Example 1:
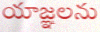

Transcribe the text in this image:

యాజ్ఞలను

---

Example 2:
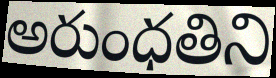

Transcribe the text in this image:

అరుంధతిని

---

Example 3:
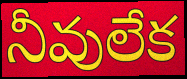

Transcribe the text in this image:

నీవులేక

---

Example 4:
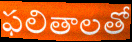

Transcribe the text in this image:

ఫలితాలతో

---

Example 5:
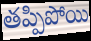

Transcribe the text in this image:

తప్పిపోయి